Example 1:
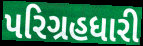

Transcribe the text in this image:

પરિગ્રહધારી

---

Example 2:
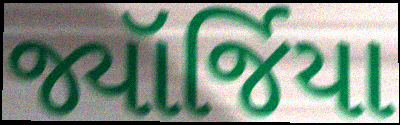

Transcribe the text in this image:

જ્યૉર્જિયા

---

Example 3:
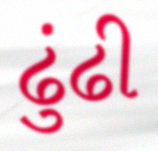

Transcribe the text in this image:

ઢુંઢી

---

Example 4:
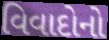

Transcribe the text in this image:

વિવાદોનો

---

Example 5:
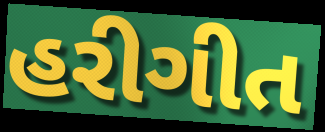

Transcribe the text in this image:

હરીગીત